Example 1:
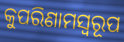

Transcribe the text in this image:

କୁପରିଣାମସ୍ୱରୂପ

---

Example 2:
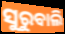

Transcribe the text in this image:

ସୁରୁବାଲି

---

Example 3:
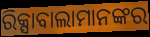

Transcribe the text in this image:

ରିକ୍ସାବାଲାମାନଙ୍କର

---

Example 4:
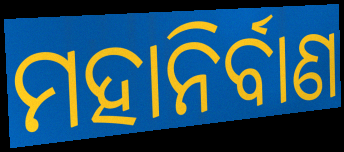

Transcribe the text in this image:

ମହାନିର୍ବାଣ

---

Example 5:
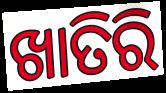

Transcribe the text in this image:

ଖାତିରି